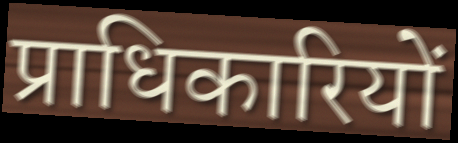
प्राधिकारियों